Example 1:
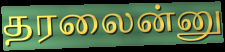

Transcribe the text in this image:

தரலைன்னு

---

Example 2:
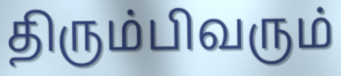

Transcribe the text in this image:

திரும்பிவரும்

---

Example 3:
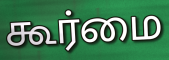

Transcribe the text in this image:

கூர்மை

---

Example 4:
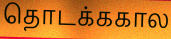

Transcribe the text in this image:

தொடக்ககால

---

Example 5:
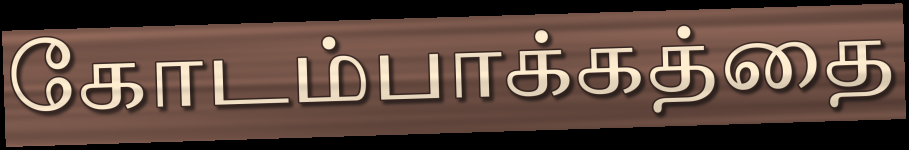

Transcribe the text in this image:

கோடம்பாக்கத்தை